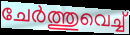
ചേർത്തുവെച്ച്